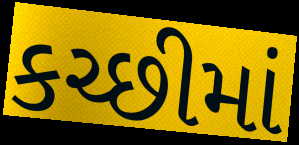
કચ્છીમાં